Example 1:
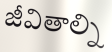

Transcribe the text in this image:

జీవితాల్ని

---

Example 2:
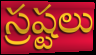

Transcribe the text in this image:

స్రష్టలు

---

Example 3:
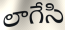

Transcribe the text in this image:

లాగేసి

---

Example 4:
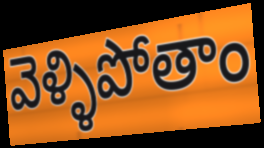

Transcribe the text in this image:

వెళ్ళిపోతాం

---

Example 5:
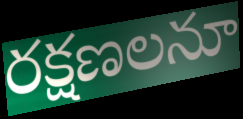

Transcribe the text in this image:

రక్షణలనూ